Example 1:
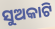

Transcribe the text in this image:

ସୁଅକାଟି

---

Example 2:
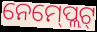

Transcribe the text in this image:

ନେମ୍‍ପ୍ଲେଟ୍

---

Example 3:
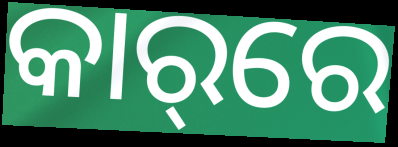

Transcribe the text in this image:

କାର୍‌ରେ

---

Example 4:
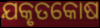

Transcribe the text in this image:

ଯକୃତକୋଷ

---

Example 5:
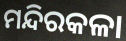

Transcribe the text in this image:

ମନ୍ଦିରକଳା